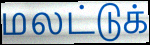
மலட்டுக்